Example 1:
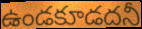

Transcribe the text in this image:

ఉండకూడదనీ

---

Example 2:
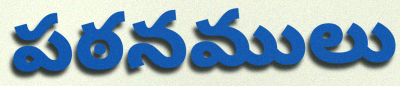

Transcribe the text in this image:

పఠనములు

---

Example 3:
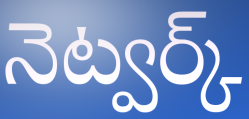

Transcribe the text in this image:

నెట్వర్క్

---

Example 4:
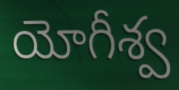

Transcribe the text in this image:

యోగీశ్వ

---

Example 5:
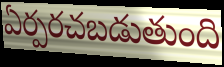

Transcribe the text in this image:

ఏర్పరచబడుతుంది